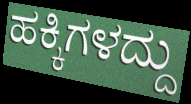
ಹಕ್ಕಿಗಳದ್ದು